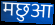
मछुआ